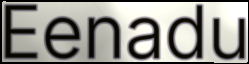
Eenadu